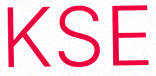
KSE